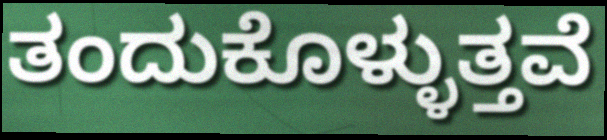
ತಂದುಕೊಳ್ಳುತ್ತವೆ